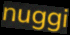
nuggi